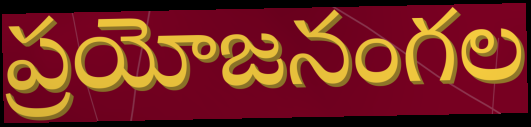
ప్రయోజనంగల